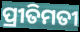
ପ୍ରୀତିମତୀ